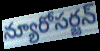
న్యూరోసర్జన్